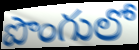
పొంగులో